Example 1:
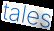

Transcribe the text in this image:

tales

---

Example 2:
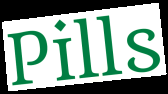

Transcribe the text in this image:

Pills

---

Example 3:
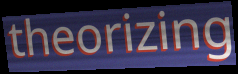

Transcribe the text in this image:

theorizing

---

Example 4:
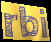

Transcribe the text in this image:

rbi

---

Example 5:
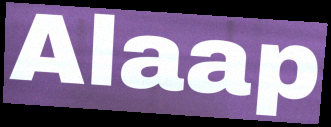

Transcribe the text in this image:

Alaap